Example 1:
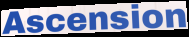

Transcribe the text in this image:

Ascension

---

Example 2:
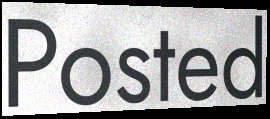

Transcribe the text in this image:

Posted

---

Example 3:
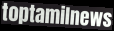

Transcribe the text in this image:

toptamilnews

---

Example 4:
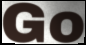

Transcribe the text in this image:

Go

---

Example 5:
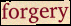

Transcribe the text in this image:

forgery